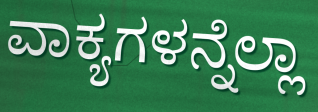
ವಾಕ್ಯಗಳನ್ನೆಲ್ಲಾ